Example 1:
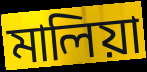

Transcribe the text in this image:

মালিয়া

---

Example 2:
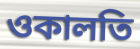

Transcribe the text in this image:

ওকালতি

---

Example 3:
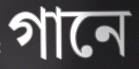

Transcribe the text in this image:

গানে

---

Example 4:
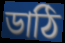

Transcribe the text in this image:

ডাঠি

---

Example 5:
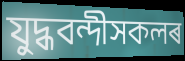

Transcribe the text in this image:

যুদ্ধবন্দীসকলৰ